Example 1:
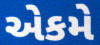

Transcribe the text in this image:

એકમે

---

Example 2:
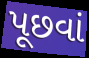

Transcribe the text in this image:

પૂછવાં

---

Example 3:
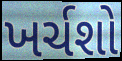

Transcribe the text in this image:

ખર્ચશો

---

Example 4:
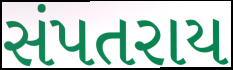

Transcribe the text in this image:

સંપતરાય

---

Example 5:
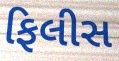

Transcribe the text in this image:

ફિલીસ